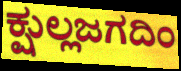
ಕ್ಷುಲ್ಲಜಗದಿಂ